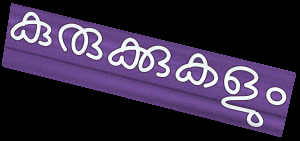
കുരുക്കുകളും